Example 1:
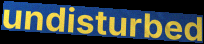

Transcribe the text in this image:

undisturbed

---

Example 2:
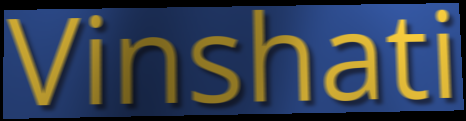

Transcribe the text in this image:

Vinshati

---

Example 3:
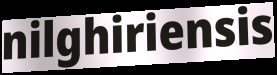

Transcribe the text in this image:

nilghiriensis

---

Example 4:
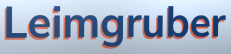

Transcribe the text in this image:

Leimgruber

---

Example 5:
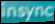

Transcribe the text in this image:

insync